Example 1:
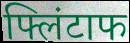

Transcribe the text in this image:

फ्लिंटाफ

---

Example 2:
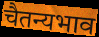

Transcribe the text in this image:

चैतन्यभाव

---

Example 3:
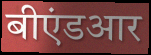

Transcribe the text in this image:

बीएंडआर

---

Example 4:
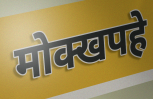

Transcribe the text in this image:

मोक्खपहे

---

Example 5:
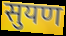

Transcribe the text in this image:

सुयण